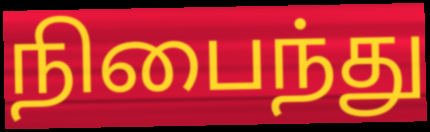
நிபைந்து